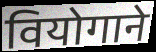
वियोगाने